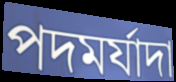
পদমর্যাদা